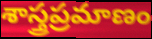
శాస్త్రప్రమాణం